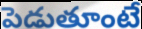
పెడుతూంటే